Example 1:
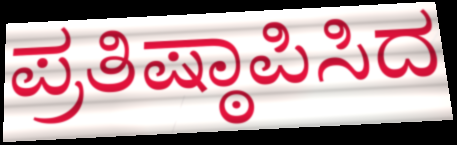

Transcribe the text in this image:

ಪ್ರತಿಷ್ಠಾಪಿಸಿದ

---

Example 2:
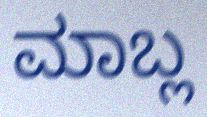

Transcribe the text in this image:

ಮಾಬ್ಲ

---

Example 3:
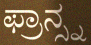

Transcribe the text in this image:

ಫ್ರಾನ್ಸ್ನ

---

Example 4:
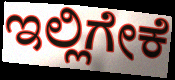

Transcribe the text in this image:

ಇಲ್ಲಿಗೇಕೆ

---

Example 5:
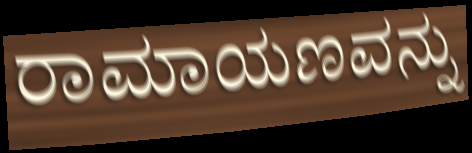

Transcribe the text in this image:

ರಾಮಾಯಣವನ್ನು